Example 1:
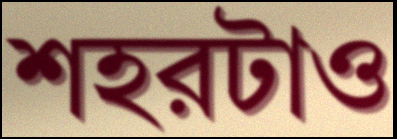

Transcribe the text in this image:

শহরটাও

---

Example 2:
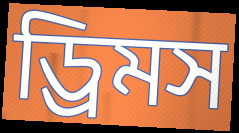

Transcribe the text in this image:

ড্রিমস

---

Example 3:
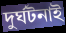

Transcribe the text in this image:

দুর্ঘটনাই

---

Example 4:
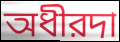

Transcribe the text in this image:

অধীরদা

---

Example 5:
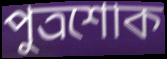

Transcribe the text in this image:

পুত্রশোক